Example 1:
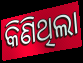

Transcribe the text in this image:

କିଣିଥିଲା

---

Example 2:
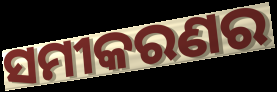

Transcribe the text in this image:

ସମୀକରଣର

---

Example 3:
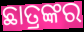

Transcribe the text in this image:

ଛାତ୍ରଙ୍କର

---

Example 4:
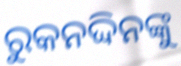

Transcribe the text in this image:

ରୁକନଦ୍ଦିନଙ୍କୁ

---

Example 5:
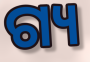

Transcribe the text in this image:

ଗ୍ୟ